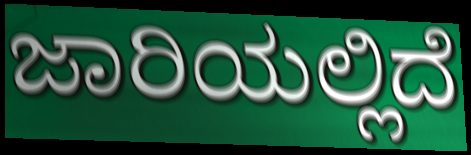
ಜಾರಿಯಲ್ಲಿದೆ